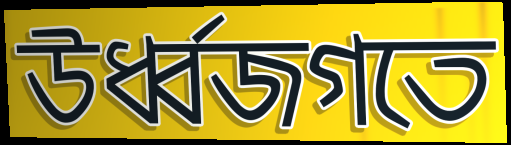
উর্ধ্বজগতে